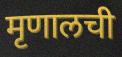
मृणालची